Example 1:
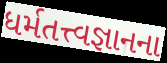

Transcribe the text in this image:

ધર્મતત્ત્વજ્ઞાનના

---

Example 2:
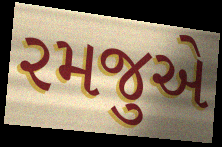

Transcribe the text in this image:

રમજુએ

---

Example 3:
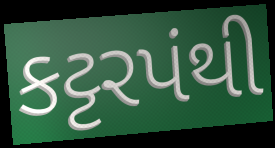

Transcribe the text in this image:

કટ્ટરપંથી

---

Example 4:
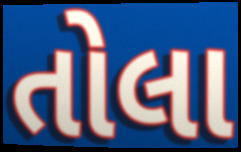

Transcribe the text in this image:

તોલા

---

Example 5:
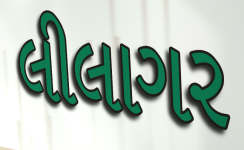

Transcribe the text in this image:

લીલાગર